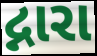
દ્નારા